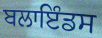
ਬਲਾਇੰਡਸ